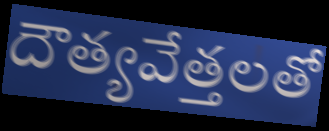
దౌత్యవేత్తలతో